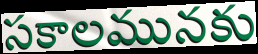
సకాలమునకు